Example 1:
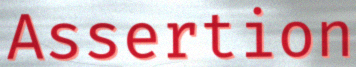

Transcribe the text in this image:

Assertion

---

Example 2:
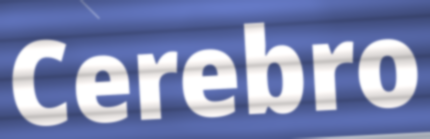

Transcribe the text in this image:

Cerebro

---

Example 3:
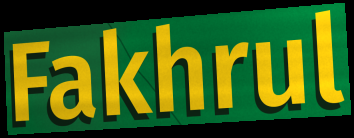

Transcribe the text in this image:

Fakhrul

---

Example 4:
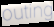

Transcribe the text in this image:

outing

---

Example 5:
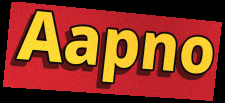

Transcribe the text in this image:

Aapno